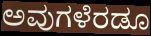
ಅವುಗಳೆರಡೂ